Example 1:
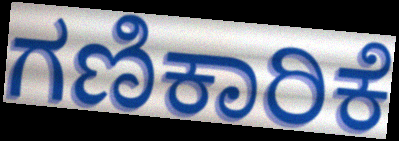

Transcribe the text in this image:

ಗಣಿಕಾರಿಕೆ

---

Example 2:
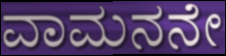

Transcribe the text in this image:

ವಾಮನನೇ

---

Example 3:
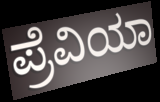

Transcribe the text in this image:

ಪ್ರೆವಿಯಾ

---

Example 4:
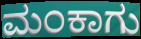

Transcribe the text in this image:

ಮಂಕಾಗು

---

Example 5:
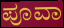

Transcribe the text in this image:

ಪೂವಾ